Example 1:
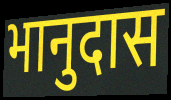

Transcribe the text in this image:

भानुदास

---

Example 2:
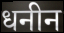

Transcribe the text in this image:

धनीन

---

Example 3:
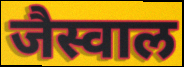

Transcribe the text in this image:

जैस्वाल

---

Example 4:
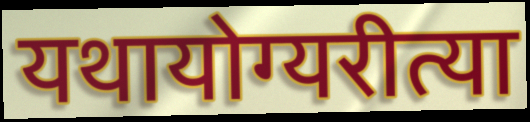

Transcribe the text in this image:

यथायोग्यरीत्या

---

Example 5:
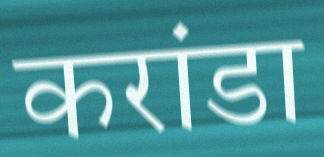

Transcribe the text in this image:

करांडा